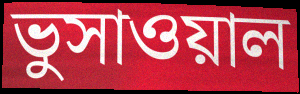
ভুসাওয়াল